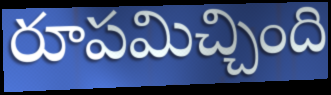
రూపమిచ్చింది